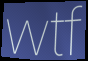
wtf